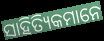
ସାହିତ୍ୟିକମାନେ